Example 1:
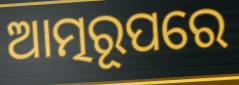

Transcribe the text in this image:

ଆତ୍ମରୂପରେ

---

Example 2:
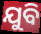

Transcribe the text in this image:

ଯୁବି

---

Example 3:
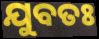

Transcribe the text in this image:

ଯୁବତଃ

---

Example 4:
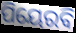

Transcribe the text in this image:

ପିୟେରବି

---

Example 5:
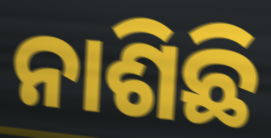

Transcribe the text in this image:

ନାଶିଛି